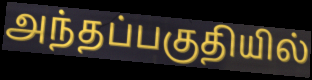
அந்தப்பகுதியில்